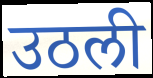
उठली